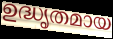
ഉദ്ധൃതമായ